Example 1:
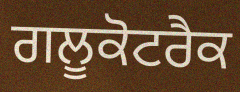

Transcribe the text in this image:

ਗਲੂਕੋਟਰੈਕ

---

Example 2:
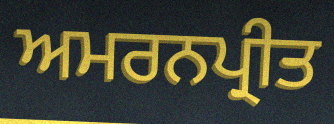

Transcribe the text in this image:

ਅਮਰਨਪ੍ਰੀਤ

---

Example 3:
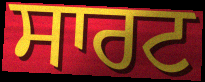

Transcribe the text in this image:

ਸਾਰਟ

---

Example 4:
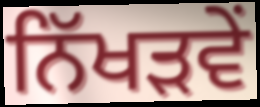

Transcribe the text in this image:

ਨਿੱਖੜਵੇਂ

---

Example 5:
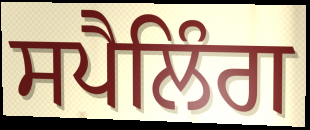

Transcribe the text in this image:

ਸਪੈਲਿੰਗ